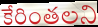
కేరింతలని